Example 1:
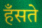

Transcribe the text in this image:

हँसते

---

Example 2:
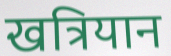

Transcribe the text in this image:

खत्रियान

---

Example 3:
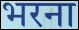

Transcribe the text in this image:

भरना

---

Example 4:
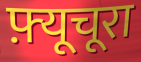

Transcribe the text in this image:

फ़्यूचूरा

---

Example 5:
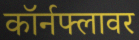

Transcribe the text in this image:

कॉर्नफ्लावर